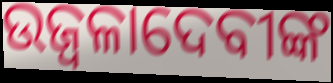
ଉଜ୍ୱଳାଦେବୀଙ୍କ